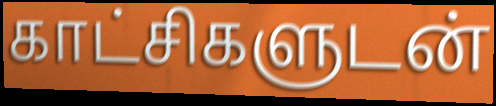
காட்சிகளுடன்